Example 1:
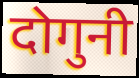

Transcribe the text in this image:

दोगुनी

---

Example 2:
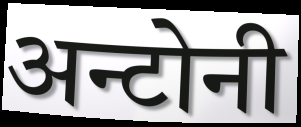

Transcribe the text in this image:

अन्टोनी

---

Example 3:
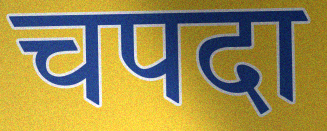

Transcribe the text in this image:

चपदा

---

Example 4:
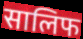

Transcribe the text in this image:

सालिफ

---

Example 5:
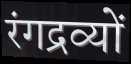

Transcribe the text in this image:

रंगद्रव्यों